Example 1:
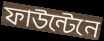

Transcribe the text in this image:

ফাউন্টেনে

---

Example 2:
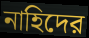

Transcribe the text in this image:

নাহিদের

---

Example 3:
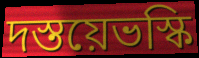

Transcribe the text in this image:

দস্তয়েভস্কি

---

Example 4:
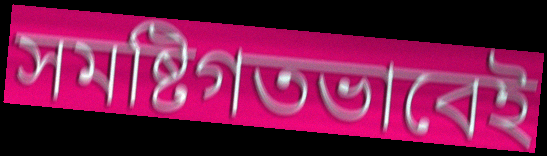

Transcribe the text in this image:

সমষ্টিগতভাবেই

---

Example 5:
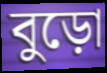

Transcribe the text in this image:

বুড়ো